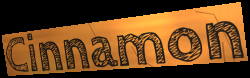
Cinnamon